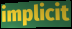
implicit